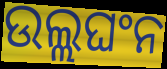
ଉଲ୍ଲଘଂନ